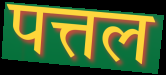
पत्तल